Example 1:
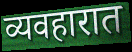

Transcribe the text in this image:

व्यवहारात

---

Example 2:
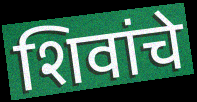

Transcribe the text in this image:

शिवांचे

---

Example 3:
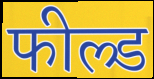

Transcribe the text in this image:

फील्ड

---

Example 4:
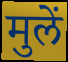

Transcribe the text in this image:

मुलें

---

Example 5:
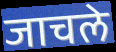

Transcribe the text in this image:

जाचले